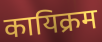
कायिक्रम